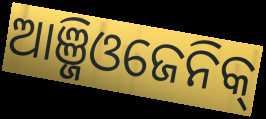
ଆଞ୍ଜିଓଜେନିକ୍